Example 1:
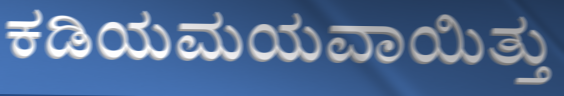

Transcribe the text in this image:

ಕಡಿಯಮಯವಾಯಿತ್ತು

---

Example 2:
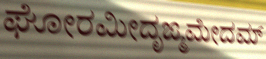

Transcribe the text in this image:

ಘೋರಮೀದೃಙ್ಮಮೇದಮ್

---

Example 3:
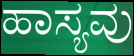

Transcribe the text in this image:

ಹಾಸ್ಯವು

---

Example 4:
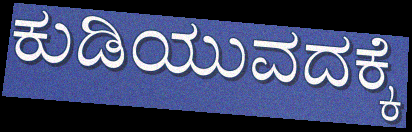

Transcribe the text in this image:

ಕುಡಿಯುವದಕ್ಕೆ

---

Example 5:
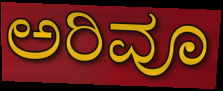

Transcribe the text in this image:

ಅರಿವೂ